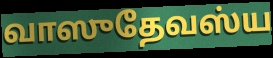
வாஸுதேவஸ்ய